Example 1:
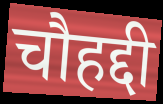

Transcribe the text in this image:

चौहद्दी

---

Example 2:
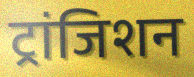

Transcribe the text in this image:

ट्रांजिशन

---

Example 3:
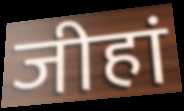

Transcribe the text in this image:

जीहां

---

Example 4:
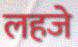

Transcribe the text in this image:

लहजे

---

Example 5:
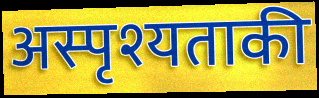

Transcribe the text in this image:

अस्पृश्यताकी